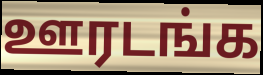
ஊரடங்க